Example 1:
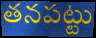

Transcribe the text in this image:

తనపట్టు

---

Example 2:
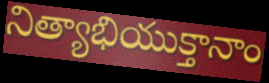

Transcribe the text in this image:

నిత్యాభియుక్తానాం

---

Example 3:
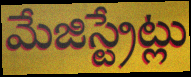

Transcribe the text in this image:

మేజిస్ట్రేట్లు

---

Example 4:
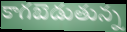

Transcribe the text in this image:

కాగబెడుతున్న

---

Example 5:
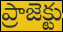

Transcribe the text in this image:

ప్రాజెక్టు